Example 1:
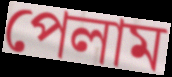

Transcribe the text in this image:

পেলাম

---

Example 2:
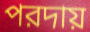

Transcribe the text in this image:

পরদায়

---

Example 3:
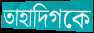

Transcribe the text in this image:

তাহাদিগকে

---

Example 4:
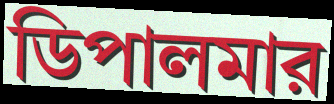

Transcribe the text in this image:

ডিপালমার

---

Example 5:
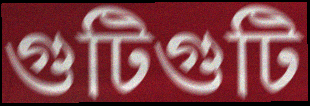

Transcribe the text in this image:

গুটিগুটি